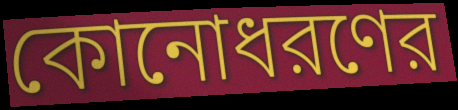
কোনোধরণের